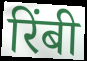
रिंबी